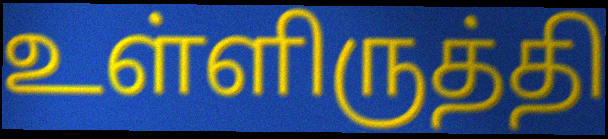
உள்ளிருத்தி